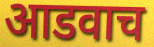
आडवाच